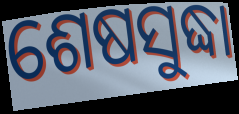
ଶେଷସୁଦ୍ଧା